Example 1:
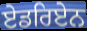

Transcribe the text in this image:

ਏਡਰਿਏਨ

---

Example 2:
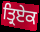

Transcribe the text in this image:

ਤ੍ਰਿਏਕ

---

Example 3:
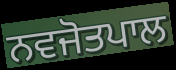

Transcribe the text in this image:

ਨਵਜੋਤਪਾਲ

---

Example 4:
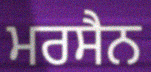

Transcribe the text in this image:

ਮਰਸੈਨ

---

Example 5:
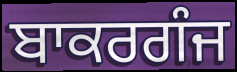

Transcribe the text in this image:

ਬਾਕਰਗੰਜ